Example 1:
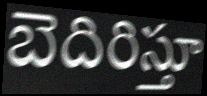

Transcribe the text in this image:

బెదిరిస్తూ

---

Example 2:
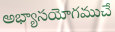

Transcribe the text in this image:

అభ్యాసయోగముచే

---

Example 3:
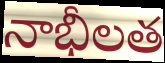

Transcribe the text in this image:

నాభీలత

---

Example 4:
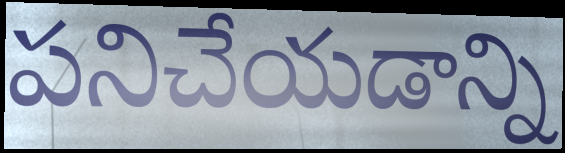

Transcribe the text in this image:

పనిచేయడాన్ని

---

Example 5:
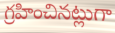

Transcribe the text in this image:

గ్రహించినట్లుగా